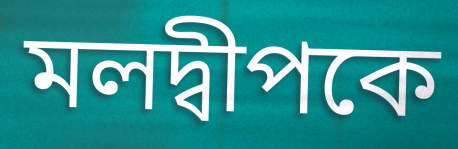
মলদ্বীপকে